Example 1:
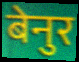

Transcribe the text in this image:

बेनुर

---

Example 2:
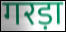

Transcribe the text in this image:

गरड़ा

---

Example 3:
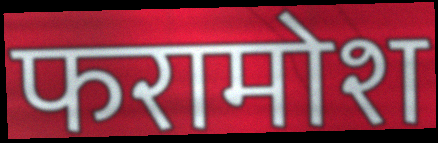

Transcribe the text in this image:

फरामोश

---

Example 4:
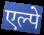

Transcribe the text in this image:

एल्पे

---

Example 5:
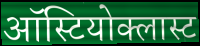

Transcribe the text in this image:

ऑस्टियोक्लास्ट